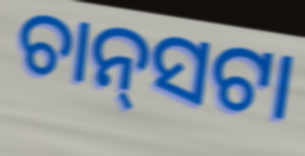
ଚାନ୍‌ସଟା